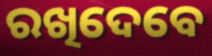
ରଖିଦେବେ